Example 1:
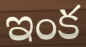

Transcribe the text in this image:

ఇంక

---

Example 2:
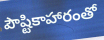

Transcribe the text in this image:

పౌష్టికాహారంతో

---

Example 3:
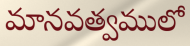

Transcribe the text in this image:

మానవత్వములో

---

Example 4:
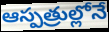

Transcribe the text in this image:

ఆస్పత్రుల్లోనే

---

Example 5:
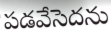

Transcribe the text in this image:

పడవేసెదను